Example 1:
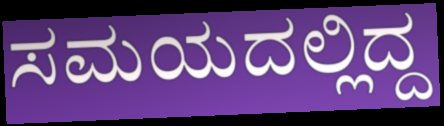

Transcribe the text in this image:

ಸಮಯದಲ್ಲಿದ್ದ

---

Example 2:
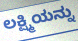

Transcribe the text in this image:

ಲಕ್ಷ್ಮಿಯನ್ನು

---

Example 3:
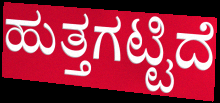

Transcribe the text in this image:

ಹುತ್ತಗಟ್ಟಿದೆ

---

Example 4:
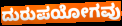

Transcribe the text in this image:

ದುರುಪಯೋಗವು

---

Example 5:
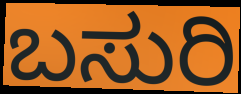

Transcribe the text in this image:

ಬಸುರಿ